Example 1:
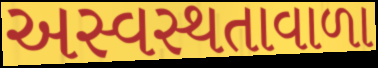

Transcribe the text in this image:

અસ્વસ્થતાવાળા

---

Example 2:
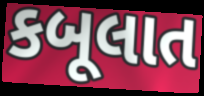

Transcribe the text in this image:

કબૂલાત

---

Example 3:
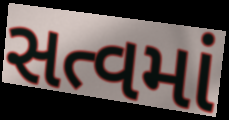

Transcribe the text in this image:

સત્વમાં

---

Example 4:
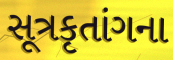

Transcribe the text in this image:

સૂત્રકૃતાંગના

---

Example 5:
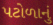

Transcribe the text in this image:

પટોળાનું